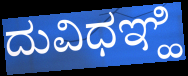
ದುವಿಧಞ್ಹಿ